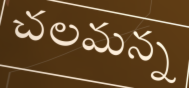
చలమన్న